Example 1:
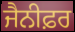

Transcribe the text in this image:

ਜੈਨੀਫ਼ਰ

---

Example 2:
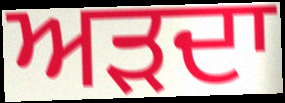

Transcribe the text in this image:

ਅੜਦਾ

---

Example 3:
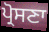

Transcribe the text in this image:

ਪ੍ਰੋਸਣਾ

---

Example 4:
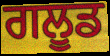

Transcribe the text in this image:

ਗਲੂਡ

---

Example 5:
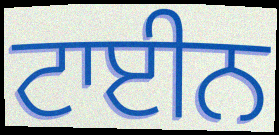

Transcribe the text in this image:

ਟਾਈਨ